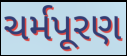
ચર્મપૂરણ